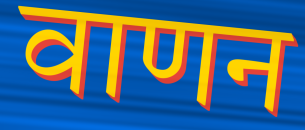
वाणन